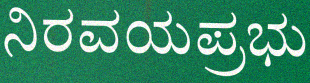
ನಿರವಯಪ್ರಭು